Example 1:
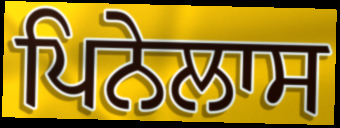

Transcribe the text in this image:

ਪਿਨੇਲਾਸ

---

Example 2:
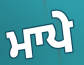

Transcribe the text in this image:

ਮਾਪੇ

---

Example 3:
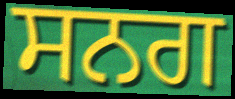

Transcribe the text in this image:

ਸਨਗ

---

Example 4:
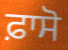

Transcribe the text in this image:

ਫ਼ਾਸੋ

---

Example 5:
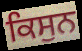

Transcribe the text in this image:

ਕਿਸੁਨ